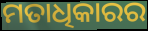
ମତାଧିକାରର